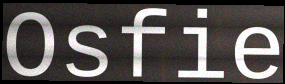
Osfie